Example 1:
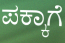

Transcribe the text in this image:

ಪಕ್ಕಾಗೆ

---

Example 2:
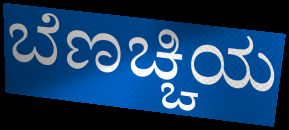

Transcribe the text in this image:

ಬೆಣಚ್ಚಿಯ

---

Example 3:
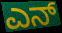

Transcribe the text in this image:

ಎನ್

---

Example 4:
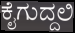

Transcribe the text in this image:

ಕೈಗುದ್ದಲಿ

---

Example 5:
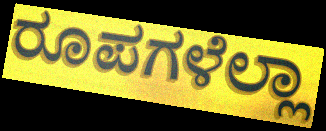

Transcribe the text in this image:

ರೂಪಗಳೆಲ್ಲಾ